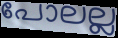
പോലല്ല